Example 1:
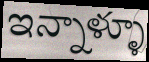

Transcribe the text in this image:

ఇన్నాళ్ళూ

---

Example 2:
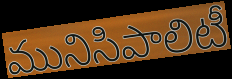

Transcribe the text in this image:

మునిసిపాలిటీ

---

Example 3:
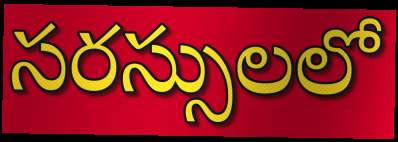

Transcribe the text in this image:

సరస్సులలో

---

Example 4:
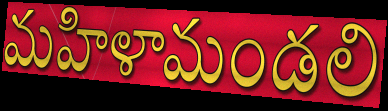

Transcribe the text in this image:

మహిళామండలి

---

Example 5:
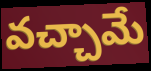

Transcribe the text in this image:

వచ్చామే